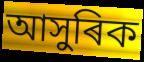
আসুৰিক